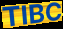
TIBC